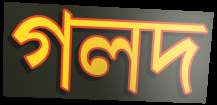
গলদ